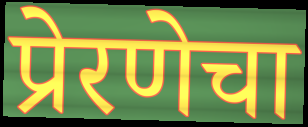
प्रेरणेचा